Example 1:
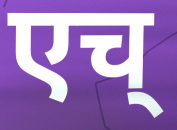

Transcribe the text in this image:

एच्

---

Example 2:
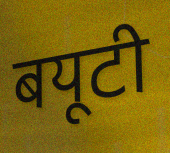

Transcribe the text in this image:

बयूटी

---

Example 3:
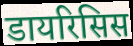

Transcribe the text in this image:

डायरिसिस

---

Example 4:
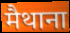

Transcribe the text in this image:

मैथाना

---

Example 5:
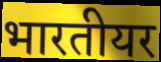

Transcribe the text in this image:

भारतीयर